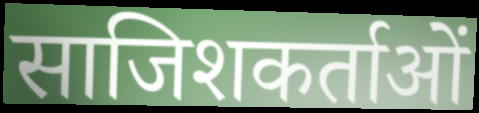
साजिशकर्ताओं